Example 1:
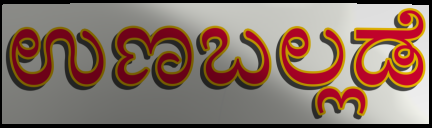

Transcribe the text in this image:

ಉಣಬಲ್ಲಡೆ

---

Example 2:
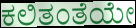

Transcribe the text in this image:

ಕಲಿತಂತೆಯೇ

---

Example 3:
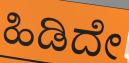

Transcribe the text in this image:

ಹಿಡಿದೇ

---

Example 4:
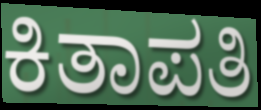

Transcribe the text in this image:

ಕಿತಾಪತಿ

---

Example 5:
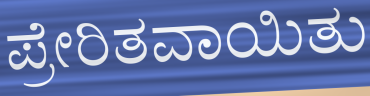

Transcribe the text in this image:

ಪ್ರೇರಿತವಾಯಿತು